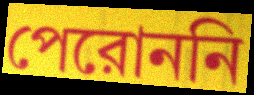
পেরোননি